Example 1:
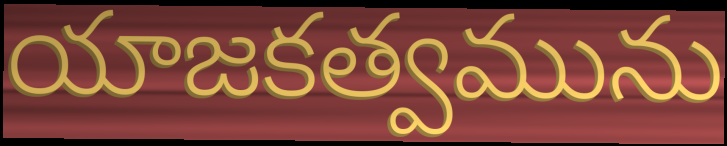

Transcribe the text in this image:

యాజకత్వమును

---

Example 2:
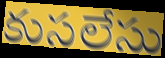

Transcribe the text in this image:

కుసలేసు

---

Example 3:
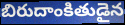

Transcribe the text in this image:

బిరుదాంకితుడైన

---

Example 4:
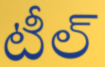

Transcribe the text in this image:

టీల్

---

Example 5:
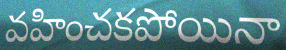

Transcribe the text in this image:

వహించకపోయినా